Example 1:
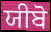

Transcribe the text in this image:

ਯੀਬੋ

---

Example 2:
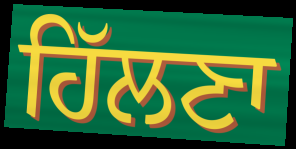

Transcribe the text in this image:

ਹਿੱਲਣਾ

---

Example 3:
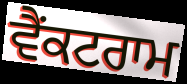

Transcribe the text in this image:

ਵੈਂਕਟਰਾਮ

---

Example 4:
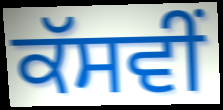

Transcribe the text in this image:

ਕੱਸਵੀਂ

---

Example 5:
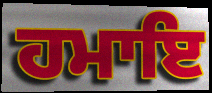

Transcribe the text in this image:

ਹਮਾਇ